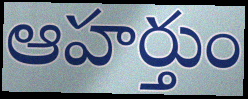
ఆహర్తుం